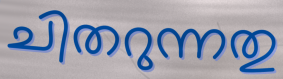
ചിതറുന്നതു